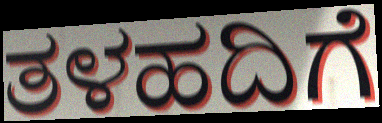
ತಳಹದಿಗೆ